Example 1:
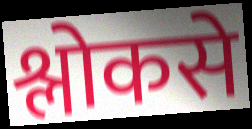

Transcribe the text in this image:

श्लोकसे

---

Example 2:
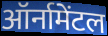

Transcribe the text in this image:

ऑर्नामेंटल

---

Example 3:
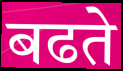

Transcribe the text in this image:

बढते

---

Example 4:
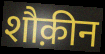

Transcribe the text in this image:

शौक़ीन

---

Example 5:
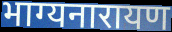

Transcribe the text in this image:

भाग्यनारायण